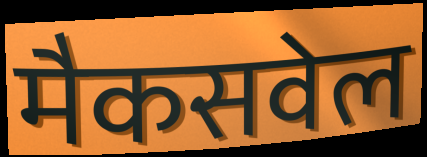
मैकसवेल